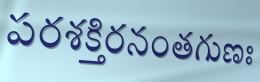
పరశక్తిరనంతగుణః